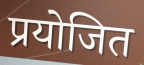
प्रयोजित